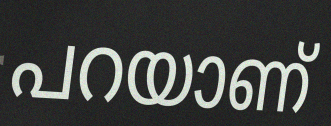
പറയാണ്